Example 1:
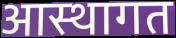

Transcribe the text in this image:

आस्थागत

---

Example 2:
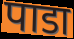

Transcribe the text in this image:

पाडा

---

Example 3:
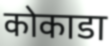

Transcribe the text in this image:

कोकाडा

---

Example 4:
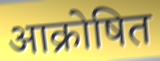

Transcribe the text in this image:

आक्रोषित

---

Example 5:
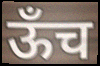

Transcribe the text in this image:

ऊँच